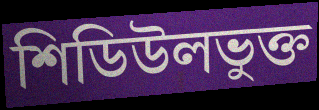
শিডিউলভুক্ত